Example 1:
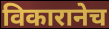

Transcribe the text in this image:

विकारानेच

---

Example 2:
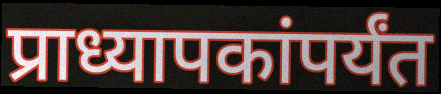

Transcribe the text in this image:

प्राध्यापकांपर्यंत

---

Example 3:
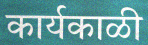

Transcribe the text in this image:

कार्यकाळी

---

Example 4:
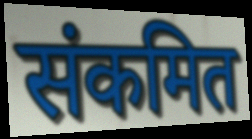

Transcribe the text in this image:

संकमित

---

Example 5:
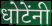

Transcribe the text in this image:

धोटेंनी